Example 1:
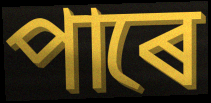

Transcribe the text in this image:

পাৰে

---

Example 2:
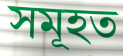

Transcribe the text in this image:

সমূহত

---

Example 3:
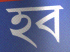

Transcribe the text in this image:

হব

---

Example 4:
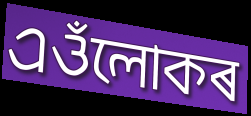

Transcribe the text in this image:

এওঁলোকৰ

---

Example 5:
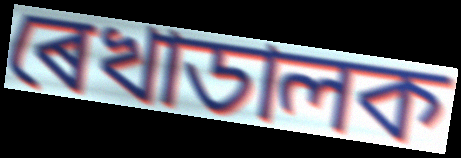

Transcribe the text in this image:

ৰেখাডালক